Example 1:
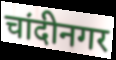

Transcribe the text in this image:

चांदीनगर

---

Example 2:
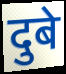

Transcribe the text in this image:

दुबे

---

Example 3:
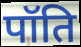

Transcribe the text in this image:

पॉति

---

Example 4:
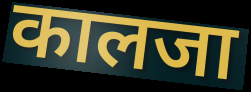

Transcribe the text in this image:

कालजा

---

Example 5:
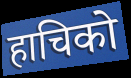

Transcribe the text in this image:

हाचिको